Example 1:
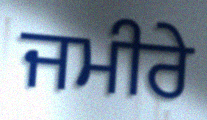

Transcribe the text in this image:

ਜਮੀਰੇ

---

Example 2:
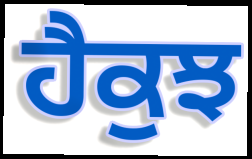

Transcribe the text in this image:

ਹੈਕੁਝ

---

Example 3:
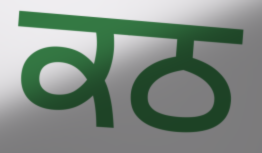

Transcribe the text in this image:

ਕਠ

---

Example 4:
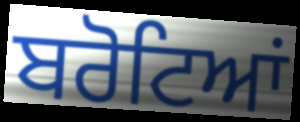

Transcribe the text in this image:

ਬਰੋਟਿਆਂ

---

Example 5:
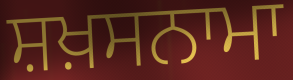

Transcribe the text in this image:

ਸ਼ਖ਼ਸਨਾਮਾ